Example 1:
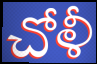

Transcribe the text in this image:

చోళీ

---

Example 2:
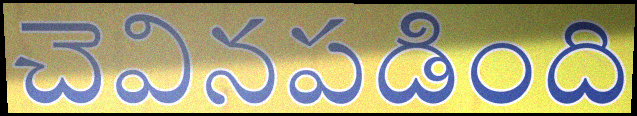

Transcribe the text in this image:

చెవినపడింది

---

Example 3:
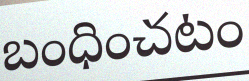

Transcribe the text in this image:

బంధించటం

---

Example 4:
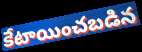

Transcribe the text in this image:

కేటాయించబడిన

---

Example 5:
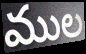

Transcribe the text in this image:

ముల